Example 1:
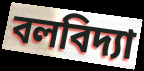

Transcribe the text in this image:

বলবিদ্যা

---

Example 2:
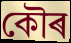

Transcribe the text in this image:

কৌৰ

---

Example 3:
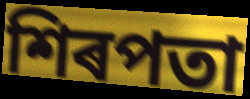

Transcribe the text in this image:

শিৰপতা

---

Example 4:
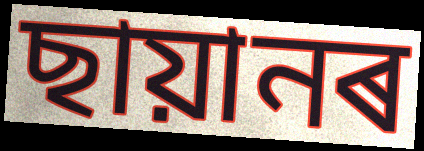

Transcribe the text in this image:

ছায়ানৰ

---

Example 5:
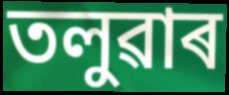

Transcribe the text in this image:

তলুৱাৰ